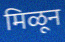
मिळून